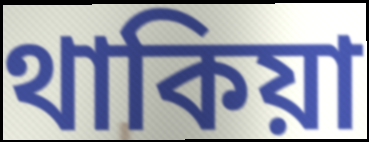
থাকিয়া